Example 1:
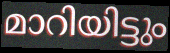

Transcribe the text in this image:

മാറിയിട്ടും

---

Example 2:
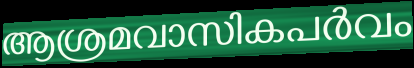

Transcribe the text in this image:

ആശ്രമവാസികപർവം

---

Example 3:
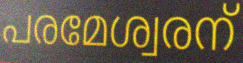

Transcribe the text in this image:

പരമേശ്വരന്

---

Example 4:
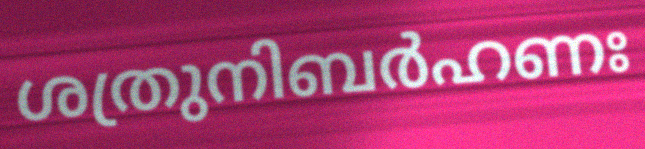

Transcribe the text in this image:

ശത്രുനിബർഹണഃ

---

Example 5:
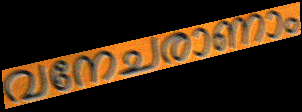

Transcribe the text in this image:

വനേചരാണാം